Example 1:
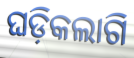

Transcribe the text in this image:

ଘଡ଼ିକଲାଗି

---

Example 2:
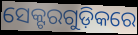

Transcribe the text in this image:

ସେକ୍ଟରଗୁଡ଼ିକରେ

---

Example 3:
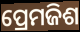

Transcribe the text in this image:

ପ୍ରେମଜିଶ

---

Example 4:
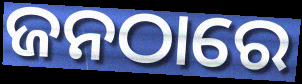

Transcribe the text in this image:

ଜନଠାରେ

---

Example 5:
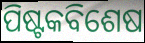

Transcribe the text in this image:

ପିଷ୍ଟକବିଶେଷ